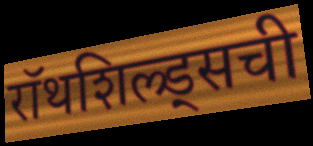
रॉथशिल्ड्सची